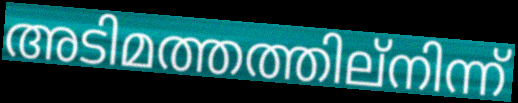
അടിമത്തത്തില്നിന്ന്